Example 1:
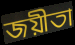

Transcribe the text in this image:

জয়ীতা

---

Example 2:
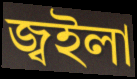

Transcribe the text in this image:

জ্বইলা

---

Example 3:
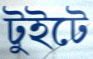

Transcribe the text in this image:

টুইটে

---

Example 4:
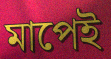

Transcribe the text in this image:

মাপেই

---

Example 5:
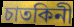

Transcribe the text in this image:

চাতকিনী